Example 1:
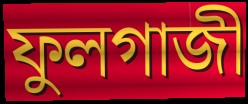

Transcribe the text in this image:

ফুলগাজী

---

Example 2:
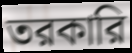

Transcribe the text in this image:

তরকারি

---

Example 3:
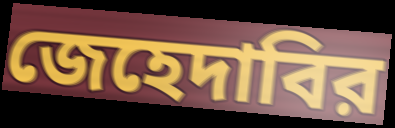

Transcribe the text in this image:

জেহেদাবির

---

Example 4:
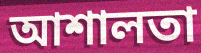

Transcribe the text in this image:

আশালতা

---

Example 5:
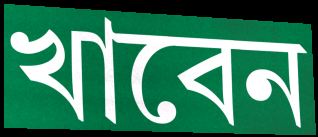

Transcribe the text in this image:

খাবেন